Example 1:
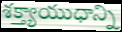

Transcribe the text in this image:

శక్త్యాయుధాన్ని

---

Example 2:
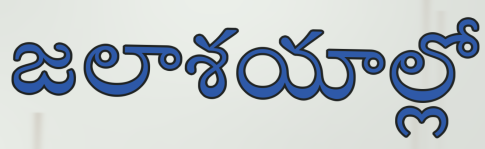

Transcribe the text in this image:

జలాశయాల్లో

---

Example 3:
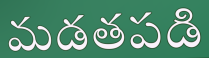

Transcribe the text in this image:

మడతపడి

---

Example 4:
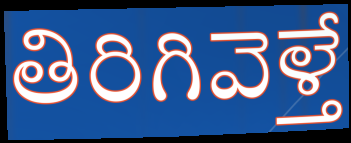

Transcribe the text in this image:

తిరిగివెళ్తే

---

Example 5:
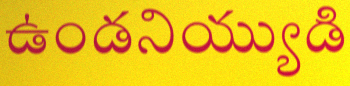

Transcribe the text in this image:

ఉండనియ్యుడి